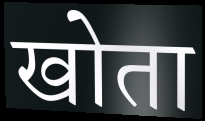
खोता